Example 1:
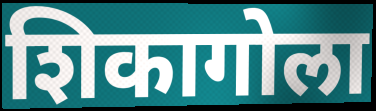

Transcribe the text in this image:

शिकागोला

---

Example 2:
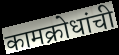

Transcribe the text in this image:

कामक्रोधांची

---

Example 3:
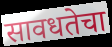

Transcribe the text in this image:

सावधतेचा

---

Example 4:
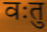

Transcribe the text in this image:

वःतु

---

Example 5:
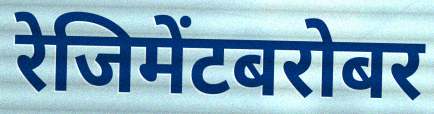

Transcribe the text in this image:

रेजिमेंटबरोबर